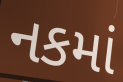
નકમાં